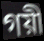
গয়ী